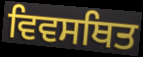
ਵਿਵਸਥਿਤ